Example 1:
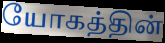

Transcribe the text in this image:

யோகத்தின்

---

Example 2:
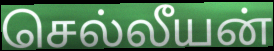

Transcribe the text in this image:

செல்லீயன்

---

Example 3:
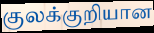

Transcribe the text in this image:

குலக்குறியான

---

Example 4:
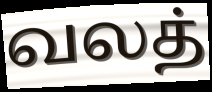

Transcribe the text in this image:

வலத்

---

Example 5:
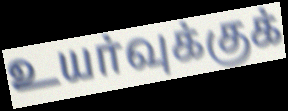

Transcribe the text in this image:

உயர்வுக்குக்